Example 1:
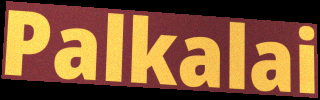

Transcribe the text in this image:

Palkalai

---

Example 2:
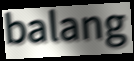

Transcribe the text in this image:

balang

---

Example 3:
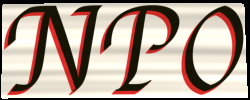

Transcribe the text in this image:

NPO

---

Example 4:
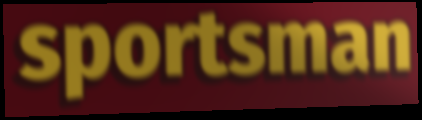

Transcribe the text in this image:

sportsman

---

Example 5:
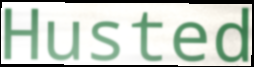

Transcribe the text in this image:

Husted